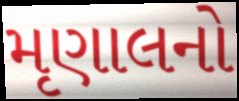
મૃણાલનો